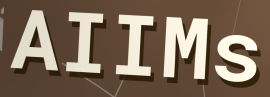
AIIMs